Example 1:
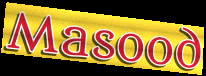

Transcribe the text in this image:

Masood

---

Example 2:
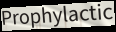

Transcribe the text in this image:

Prophylactic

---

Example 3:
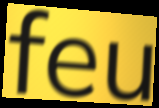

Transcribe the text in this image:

feu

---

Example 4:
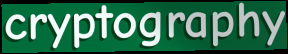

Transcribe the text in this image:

cryptography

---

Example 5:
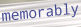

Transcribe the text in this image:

memorably